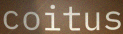
coitus